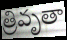
త్రివృతా